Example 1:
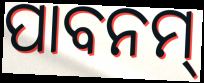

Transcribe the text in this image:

ପାବନମ୍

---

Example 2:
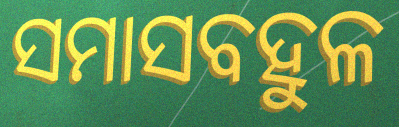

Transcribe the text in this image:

ସମାସବହୁଳ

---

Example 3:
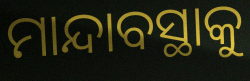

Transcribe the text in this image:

ମାନ୍ଦାବସ୍ଥାକୁ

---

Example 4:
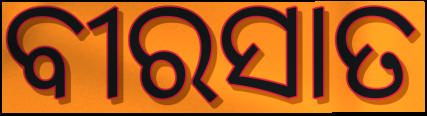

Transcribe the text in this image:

ବୀରସାତ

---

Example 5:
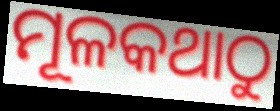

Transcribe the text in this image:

ମୂଳକଥାଠୁ